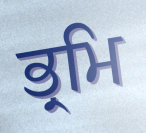
ਭ੍ਰਮਿ